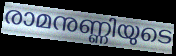
രാമനുണ്ണിയുടെ